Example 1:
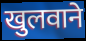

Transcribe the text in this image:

खुलवाने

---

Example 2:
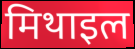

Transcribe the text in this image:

मिथाइल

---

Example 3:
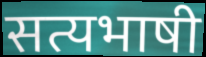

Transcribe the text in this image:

सत्यभाषी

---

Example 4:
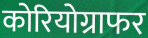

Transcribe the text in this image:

कोरियोग्राफर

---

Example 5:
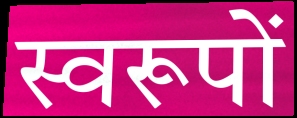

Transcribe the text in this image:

स्वरूपों